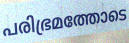
പരിഭ്രമത്തോടെ